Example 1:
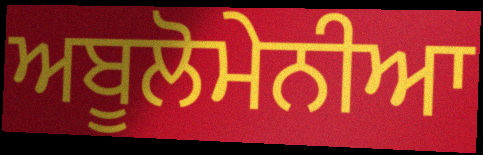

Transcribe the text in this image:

ਅਬੂਲੋਮੇਨੀਆ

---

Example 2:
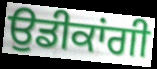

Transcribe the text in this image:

ਉਡੀਕਾਂਗੀ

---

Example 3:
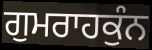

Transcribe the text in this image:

ਗੁਮਰਾਹਕੁੰਨ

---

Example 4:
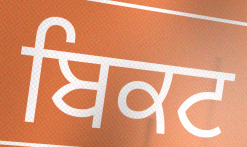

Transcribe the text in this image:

ਬਿਕਟ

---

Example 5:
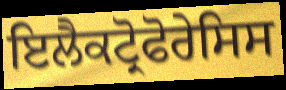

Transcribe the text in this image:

ਇਲੈਕਟ੍ਰੋਫੋਰੇਸਿਸ